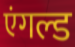
एंगल्ड